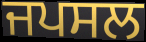
ਜਪਸਲ